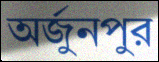
অর্জুনপুর